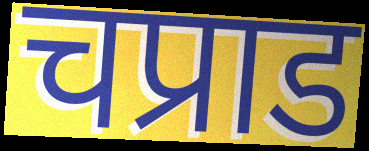
चप्राड